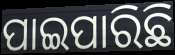
ପାଇପାରିଛି